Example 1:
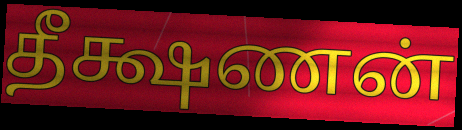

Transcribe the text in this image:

தீக்ஷணன்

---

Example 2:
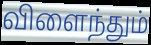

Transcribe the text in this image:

விளைந்தும்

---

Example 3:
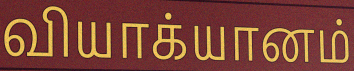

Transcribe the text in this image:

வியாக்யானம்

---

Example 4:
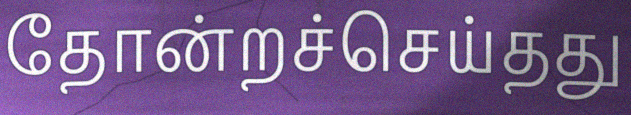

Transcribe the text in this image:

தோன்றச்செய்தது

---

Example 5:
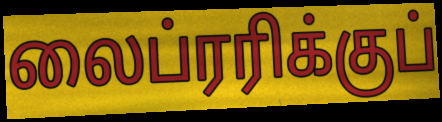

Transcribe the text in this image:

லைப்ரரிக்குப்